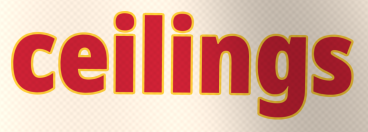
ceilings